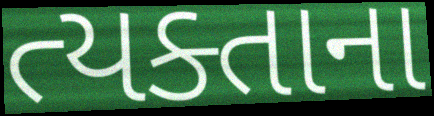
ત્યક્તાના